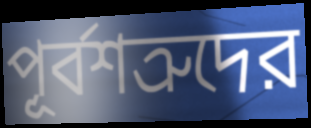
পূর্বশত্রুদের